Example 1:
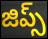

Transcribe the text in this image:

జిప్స్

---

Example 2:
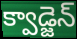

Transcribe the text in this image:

క్వాడ్జెన్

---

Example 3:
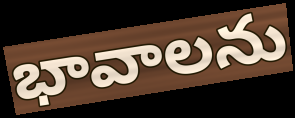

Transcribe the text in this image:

భావాలను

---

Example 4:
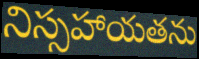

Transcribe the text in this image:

నిస్సహాయతను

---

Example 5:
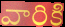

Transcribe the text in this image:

వారికి